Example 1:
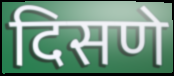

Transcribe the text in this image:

दिसणे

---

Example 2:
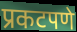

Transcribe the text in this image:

प्रकटपणे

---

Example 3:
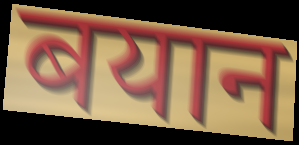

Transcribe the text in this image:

बयान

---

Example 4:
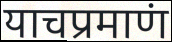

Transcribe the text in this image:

याचप्रमाणं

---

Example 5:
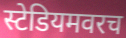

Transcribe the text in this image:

स्टेडियमवरच